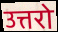
उत्तरो